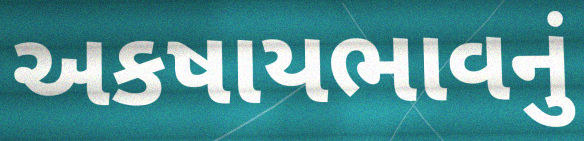
અકષાયભાવનું